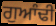
ਗੁਆੰਢੀ